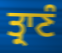
ਤ੍ਰਾਣੰ